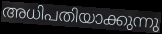
അധിപതിയാക്കുന്നു